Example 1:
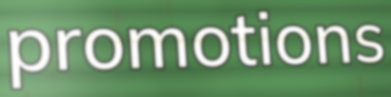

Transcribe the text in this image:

promotions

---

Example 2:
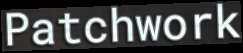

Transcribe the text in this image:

Patchwork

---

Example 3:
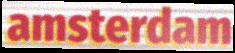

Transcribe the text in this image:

amsterdam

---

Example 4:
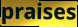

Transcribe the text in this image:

praises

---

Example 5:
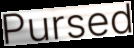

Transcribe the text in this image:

Pursed